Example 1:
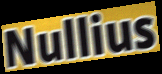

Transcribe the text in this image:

Nullius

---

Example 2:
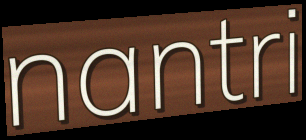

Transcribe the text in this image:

nantri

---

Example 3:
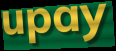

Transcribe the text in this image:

upay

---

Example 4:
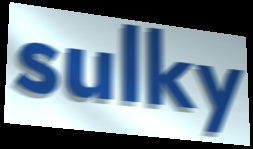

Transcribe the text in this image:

sulky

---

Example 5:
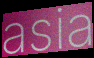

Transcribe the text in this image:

asia